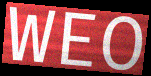
WEO